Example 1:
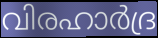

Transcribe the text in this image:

വിരഹാർദ്ര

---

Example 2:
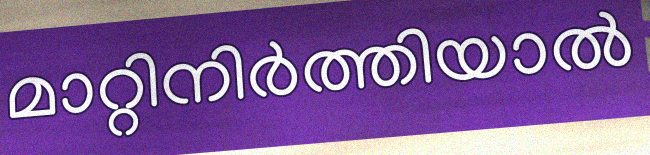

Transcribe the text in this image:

മാറ്റിനിർത്തിയാൽ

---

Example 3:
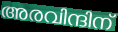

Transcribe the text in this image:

അരവിന്ദിന്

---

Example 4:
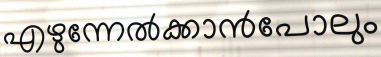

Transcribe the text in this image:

എഴുന്നേൽക്കാൻപോലും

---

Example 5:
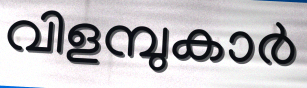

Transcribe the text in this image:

വിളമ്പുകാർ